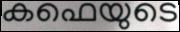
കഫെയുടെ